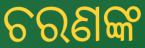
ଚରଣଙ୍କ